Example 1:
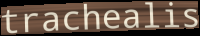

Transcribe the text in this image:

trachealis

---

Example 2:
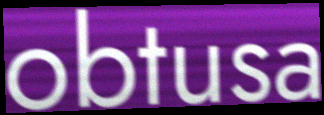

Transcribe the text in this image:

obtusa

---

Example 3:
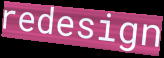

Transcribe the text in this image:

redesign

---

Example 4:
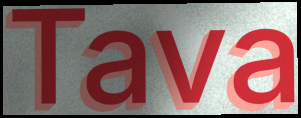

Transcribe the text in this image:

Tava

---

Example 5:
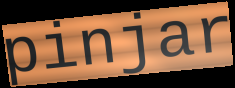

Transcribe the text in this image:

pinjar